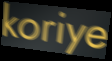
koriye